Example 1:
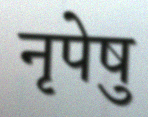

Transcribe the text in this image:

नृपेषु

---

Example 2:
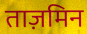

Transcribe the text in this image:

ताज़मिन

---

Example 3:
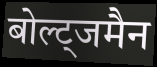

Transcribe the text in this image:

बोल्ट्जमैन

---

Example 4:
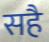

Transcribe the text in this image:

सहै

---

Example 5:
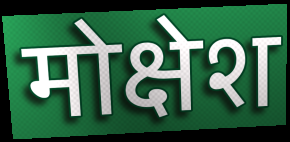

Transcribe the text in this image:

मोक्षेश